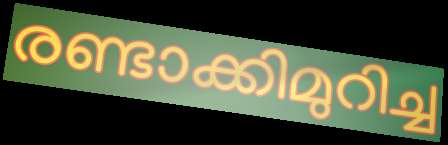
രണ്ടാക്കിമുറിച്ച